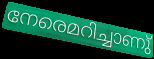
നേരെമറിച്ചാണു്